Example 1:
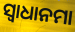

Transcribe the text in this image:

ସ୍ଵାଧାନମା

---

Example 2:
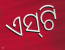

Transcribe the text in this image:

ଏସ୍‌ଟି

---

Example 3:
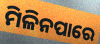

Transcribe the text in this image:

ମିଳିନପାରେ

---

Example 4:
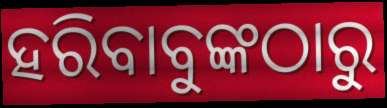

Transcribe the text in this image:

ହରିବାବୁଙ୍କଠାରୁ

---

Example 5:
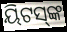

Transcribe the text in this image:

ୟିଟସ୍‌ଙ୍କ